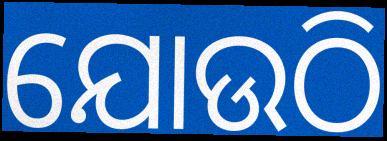
ଯୋଉଠି